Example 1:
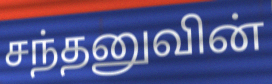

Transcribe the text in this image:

சந்தனுவின்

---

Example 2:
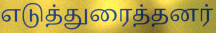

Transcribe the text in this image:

எடுத்துரைத்தனர்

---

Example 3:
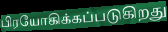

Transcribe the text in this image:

பிரயோகிக்கப்படுகிறது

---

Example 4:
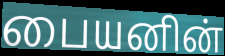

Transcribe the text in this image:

பையனின்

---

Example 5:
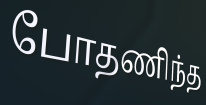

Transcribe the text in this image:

போதணிந்த